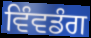
ਵਿੰਵਡੰਗ